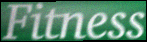
Fitness